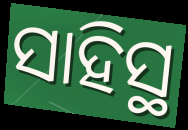
ସାହିସ୍ଥ